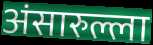
अंसारुल्ला